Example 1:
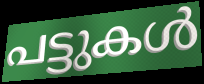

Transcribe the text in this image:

പട്ടുകൾ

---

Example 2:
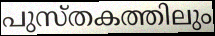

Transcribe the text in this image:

പുസ്തകത്തിലും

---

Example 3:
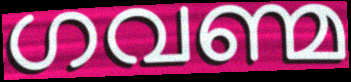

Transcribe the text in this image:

ഗവണ്മ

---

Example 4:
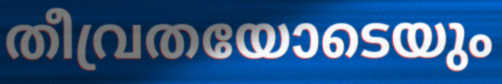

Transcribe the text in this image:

തീവ്രതയോടെയും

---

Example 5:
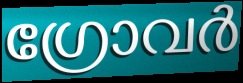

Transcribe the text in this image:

ഗ്രോവർ